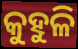
କୁହୁଳି